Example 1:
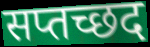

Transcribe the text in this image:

सप्तच्छद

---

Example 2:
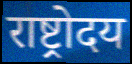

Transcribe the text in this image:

राष्ट्रोदय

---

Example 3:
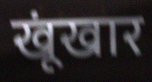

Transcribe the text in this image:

खूंखार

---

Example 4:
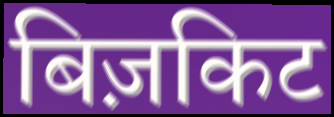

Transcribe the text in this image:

बिज़किट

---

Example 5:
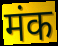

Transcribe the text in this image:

मंक